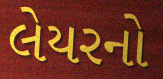
લેયરનો